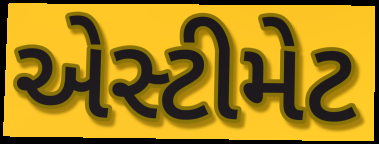
એસ્ટીમેટ